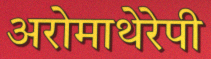
अरोमाथेरेपी